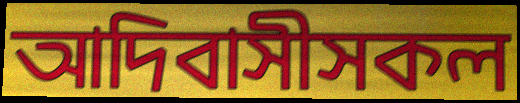
আদিবাসীসকল